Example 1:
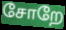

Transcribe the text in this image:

சோறே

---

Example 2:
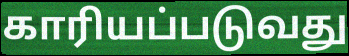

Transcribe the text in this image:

காரியப்படுவது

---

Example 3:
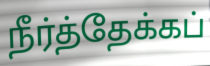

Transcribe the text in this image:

நீர்த்தேக்கப்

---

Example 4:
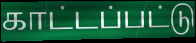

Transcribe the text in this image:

காட்டப்பட்டு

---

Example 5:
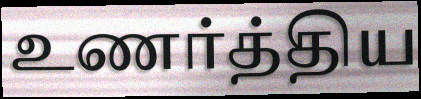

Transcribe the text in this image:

உணர்த்திய